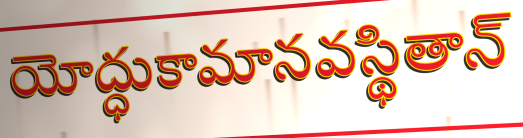
యోద్ధుకామానవస్థితాన్